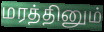
மரத்தினும்